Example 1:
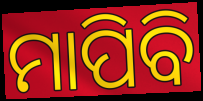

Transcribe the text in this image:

ମାପିବି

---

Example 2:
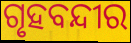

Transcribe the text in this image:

ଗୃହବନ୍ଦୀର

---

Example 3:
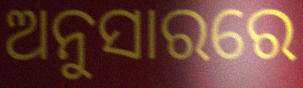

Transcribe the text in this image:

ଅନୁସାରରେ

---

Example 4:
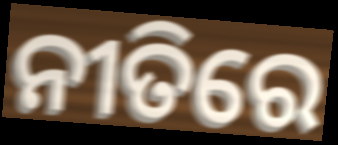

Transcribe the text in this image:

ନୀତିରେ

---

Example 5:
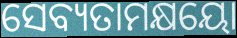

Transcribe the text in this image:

ସେବ୍ୟତାମକ୍ଷୟୋ